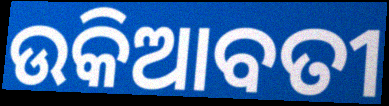
ଉକିଆବତୀ